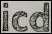
icd